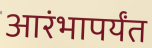
आरंभापर्यंत